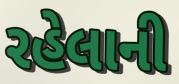
રહેલાની